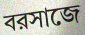
বরসাজে